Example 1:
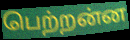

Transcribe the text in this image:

பெற்றன்ன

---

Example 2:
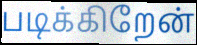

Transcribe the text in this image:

படிக்கிறேன்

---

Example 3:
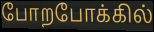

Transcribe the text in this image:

போறபோக்கில்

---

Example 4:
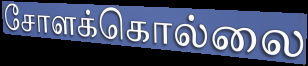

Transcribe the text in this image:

சோளக்கொல்லை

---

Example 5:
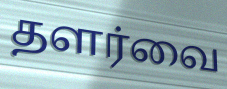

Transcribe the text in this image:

தளர்வை